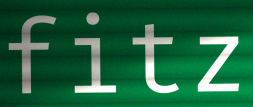
fitz